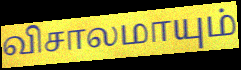
விசாலமாயும்